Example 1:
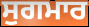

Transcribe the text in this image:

ਸੁਗਮਾਰ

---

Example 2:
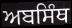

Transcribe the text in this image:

ਅਬਸਿੰਥ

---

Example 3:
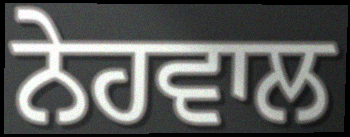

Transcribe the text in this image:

ਨੇਹਵਾਲ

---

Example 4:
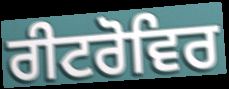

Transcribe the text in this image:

ਰੀਟਰੋਵਿਰ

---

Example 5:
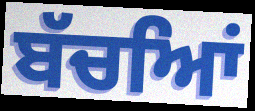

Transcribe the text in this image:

ਬੱਚਆਿਂ